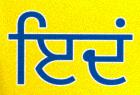
ਇਦਂ